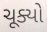
ચૂક્યો